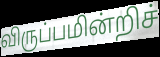
விருப்பமின்றிச்